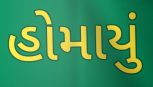
હોમાયું